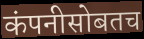
कंपनीसोबतच